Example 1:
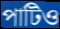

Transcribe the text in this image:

পাটিও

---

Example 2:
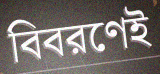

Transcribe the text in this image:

বিবরণেই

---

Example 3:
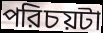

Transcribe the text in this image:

পরিচয়টা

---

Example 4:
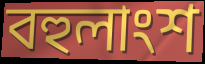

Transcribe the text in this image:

বহুলাংশ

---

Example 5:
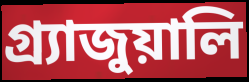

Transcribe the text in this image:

গ্র্যাজুয়ালি